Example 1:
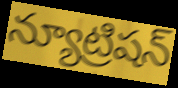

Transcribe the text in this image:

న్యూట్రిషన్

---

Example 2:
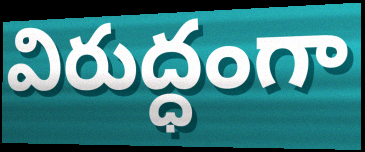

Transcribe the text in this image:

విరుద్ధంగా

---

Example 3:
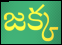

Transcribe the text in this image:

జక్క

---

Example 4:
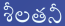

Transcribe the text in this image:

శీలతనీ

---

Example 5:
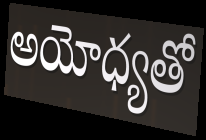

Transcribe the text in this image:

అయోధ్యతో